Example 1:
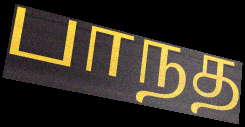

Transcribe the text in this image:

பாநத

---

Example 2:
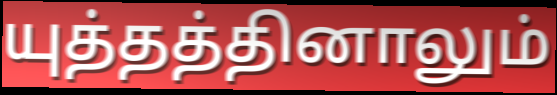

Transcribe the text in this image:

யுத்தத்தினாலும்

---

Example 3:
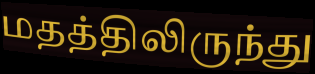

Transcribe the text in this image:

மதத்திலிருந்து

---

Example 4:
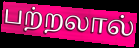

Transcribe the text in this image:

பற்றலால்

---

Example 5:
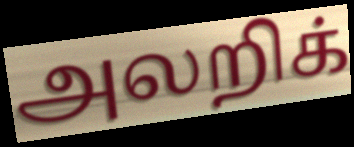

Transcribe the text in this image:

அலறிக்